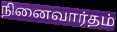
நினைவார்தம்